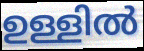
ഉള്ളിൽ